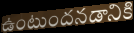
ఉంటుందనడానికి